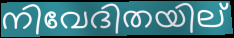
നിവേദിതയില്